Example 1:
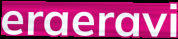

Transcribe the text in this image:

eraeravi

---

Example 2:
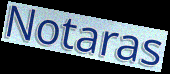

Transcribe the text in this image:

Notaras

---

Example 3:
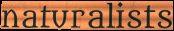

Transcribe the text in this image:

naturalists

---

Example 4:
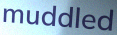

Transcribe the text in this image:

muddled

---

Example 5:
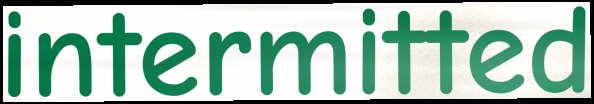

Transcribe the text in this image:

intermitted